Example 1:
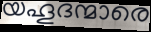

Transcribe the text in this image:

യഹൂദന്മാരെ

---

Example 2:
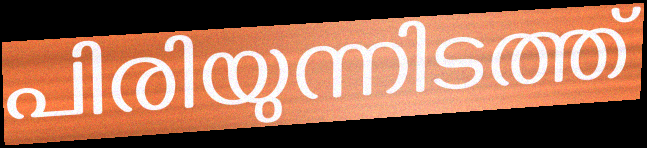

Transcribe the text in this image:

പിരിയുന്നിടത്ത്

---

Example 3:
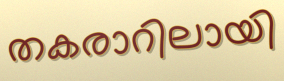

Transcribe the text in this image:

തകരാറിലായി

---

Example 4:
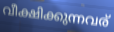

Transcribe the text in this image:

വീക്ഷിക്കുന്നവര്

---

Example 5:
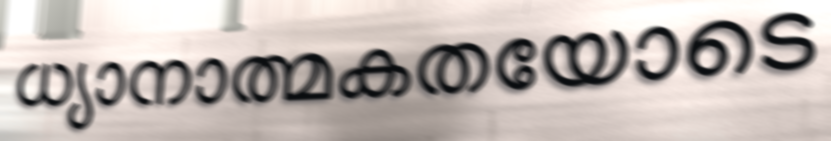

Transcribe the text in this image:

ധ്യാനാത്മകതയോടെ